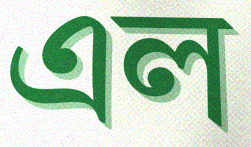
এল